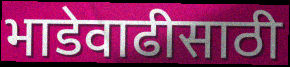
भाडेवाढीसाठी